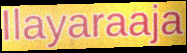
Ilayaraaja